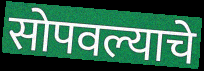
सोपवल्याचे